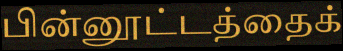
பின்னூட்டத்தைக்